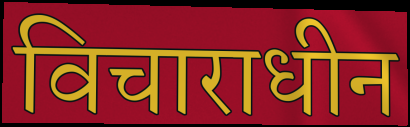
विचाराधीन